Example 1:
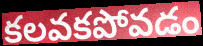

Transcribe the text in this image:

కలవకపోవడం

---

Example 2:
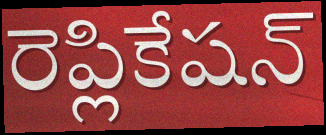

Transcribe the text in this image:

రెప్లికేషన్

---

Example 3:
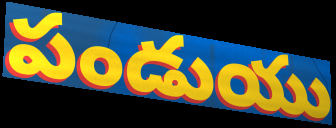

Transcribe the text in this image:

పండుయు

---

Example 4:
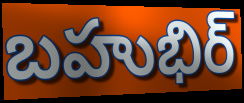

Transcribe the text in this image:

బహుభిర్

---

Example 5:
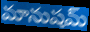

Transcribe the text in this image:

మానుషమ్